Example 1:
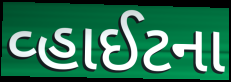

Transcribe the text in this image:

વ્હાઈટના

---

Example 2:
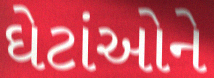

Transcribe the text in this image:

ઘેટાંઓને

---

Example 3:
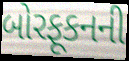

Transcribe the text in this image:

બોરફૂકનની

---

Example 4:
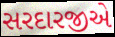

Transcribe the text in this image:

સરદારજીએ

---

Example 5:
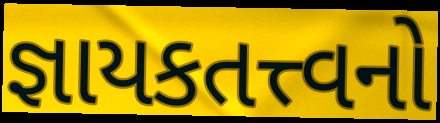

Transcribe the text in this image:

જ્ઞાયકતત્ત્વનો